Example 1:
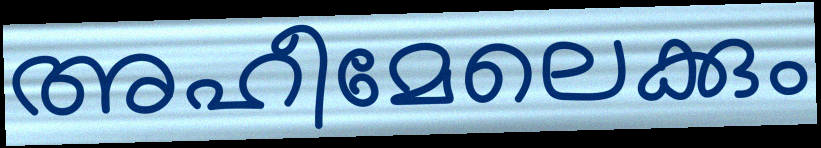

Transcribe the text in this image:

അഹീമേലെക്കും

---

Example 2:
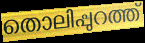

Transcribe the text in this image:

തൊലിപ്പുറത്ത്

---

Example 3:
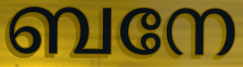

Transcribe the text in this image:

ബനേ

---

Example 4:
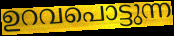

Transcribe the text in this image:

ഉറവപൊട്ടുന്ന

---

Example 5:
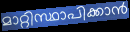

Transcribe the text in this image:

മാറ്റിസ്ഥാപിക്കാൻ